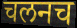
चलनच